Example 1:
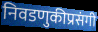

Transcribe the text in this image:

निवडणुकीप्रसंगी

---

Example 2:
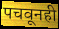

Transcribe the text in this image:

पचवूनही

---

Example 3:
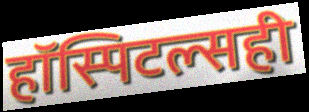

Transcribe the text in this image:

हॉस्पिटल्सही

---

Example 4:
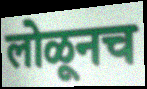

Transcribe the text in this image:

लोळूनच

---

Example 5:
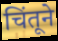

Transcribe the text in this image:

चिंतूने